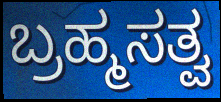
ಬ್ರಹ್ಮಸತ್ವ